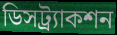
ডিসট্র্যাকশন